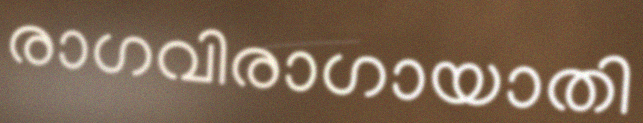
രാഗവിരാഗായാതി